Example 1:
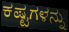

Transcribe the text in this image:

ಕಷ್ಟಗಳನ್ನು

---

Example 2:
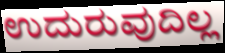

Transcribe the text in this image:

ಉದುರುವುದಿಲ್ಲ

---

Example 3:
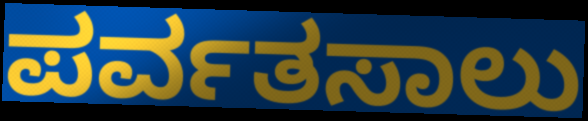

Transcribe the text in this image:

ಪರ್ವತಸಾಲು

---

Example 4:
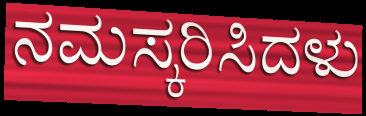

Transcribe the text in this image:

ನಮಸ್ಕರಿಸಿದಳು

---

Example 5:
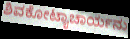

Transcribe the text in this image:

ಶಿವಕೋಟ್ಯಾಚಾರ್ಯನು